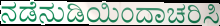
ನಡೆನುಡಿಯಿಂದಾಚರಿಸಿ